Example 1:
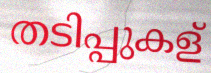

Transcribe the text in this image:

തടിപ്പുകള്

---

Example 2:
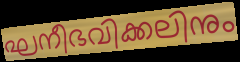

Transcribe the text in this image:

ഘനീഭവിക്കലിനും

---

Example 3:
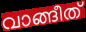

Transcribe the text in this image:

വാങ്ങീത്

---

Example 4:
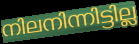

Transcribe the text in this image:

നിലനിന്നിട്ടില്ല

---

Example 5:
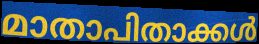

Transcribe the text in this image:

മാതാപിതാക്കൾ